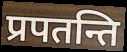
प्रपतन्ति